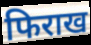
फिराख